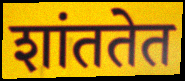
शांततेत